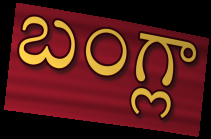
బంగ్లా